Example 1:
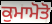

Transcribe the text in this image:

ਕੁਮਾਮੋਤੋ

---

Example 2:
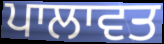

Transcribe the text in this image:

ਪਾਲਾਵਤ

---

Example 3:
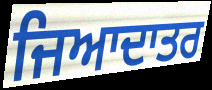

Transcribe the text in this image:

ਜਿਆਦਾਤਰ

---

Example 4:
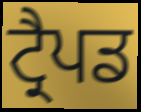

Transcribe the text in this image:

ਟ੍ਰੈਪਡ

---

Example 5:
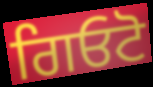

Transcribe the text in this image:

ਗਿਓਟੋ